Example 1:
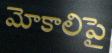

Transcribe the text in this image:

మోకాలిపై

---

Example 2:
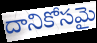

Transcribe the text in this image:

దానికోసమై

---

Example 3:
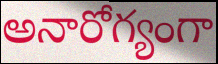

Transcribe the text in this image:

అనారోగ్యంగా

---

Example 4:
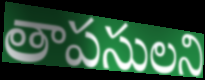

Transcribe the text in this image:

తాపసులని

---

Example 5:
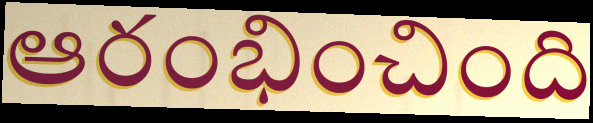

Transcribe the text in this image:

ఆరంభించింది